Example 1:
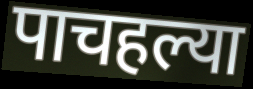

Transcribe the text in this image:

पाचहल्या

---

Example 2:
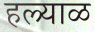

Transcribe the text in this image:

हल्याळ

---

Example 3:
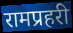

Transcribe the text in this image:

रामप्रहरी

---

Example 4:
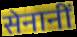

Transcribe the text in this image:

सेनानीं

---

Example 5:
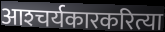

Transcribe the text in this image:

आश्‍चर्यकारकरित्या